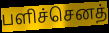
பளிச்செனத்